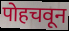
पोहचवून